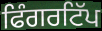
ਫਿੰਗਰਟਿੱਪ